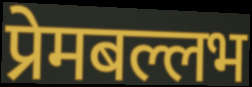
प्रेमबल्लभ